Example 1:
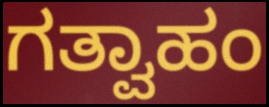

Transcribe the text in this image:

ಗತ್ವಾಹಂ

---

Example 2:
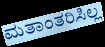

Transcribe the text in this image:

ಮತಾಂತರಿಸಿಲ್ಲ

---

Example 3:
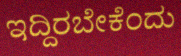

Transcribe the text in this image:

ಇದ್ದಿರಬೇಕೆಂದು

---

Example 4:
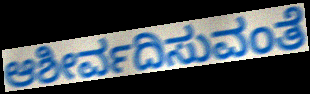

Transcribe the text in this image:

ಆಶೀರ್ವದಿಸುವಂತೆ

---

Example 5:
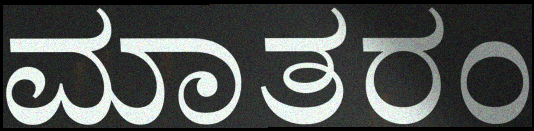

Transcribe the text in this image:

ಮಾತರಂ